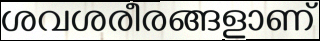
ശവശരീരങ്ങളാണ്